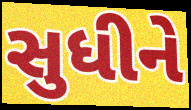
સુધીને